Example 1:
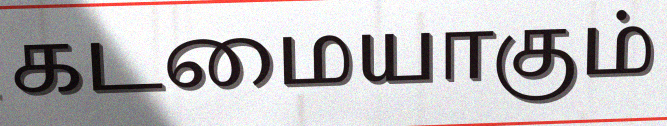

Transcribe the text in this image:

கடமையாகும்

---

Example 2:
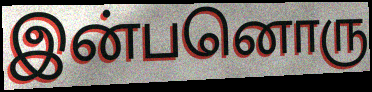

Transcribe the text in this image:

இன்பனொரு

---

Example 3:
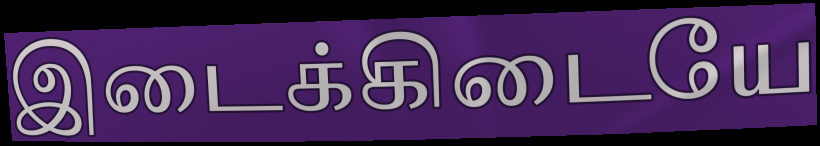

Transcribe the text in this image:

இடைக்கிடையே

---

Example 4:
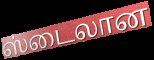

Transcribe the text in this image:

ஸ்டைலான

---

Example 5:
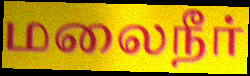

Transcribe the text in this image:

மலைநீர்